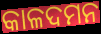
କାଳଦମନ